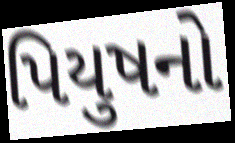
પિયુષનો